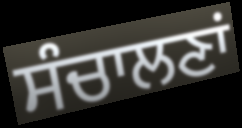
ਸੰਚਾਲਣਾਂ